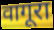
वागूरा